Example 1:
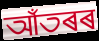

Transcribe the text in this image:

আঁতৰৰ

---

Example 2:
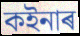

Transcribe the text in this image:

কইনাৰ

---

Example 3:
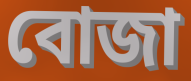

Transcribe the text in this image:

বোজা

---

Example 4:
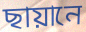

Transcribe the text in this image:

ছায়ানে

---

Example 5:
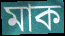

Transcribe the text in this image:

মাক